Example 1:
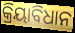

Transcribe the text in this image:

କ୍ରିୟାବିଧାନ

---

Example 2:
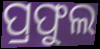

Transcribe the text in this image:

ପ୍ରଫୁଲ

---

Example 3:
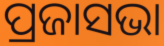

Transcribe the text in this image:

ପ୍ରଜାସଭା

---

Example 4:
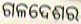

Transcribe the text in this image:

ଗଳଦେଶର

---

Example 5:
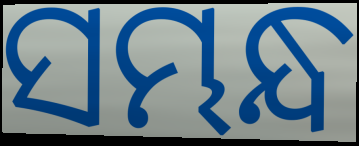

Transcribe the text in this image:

ସମ୍ଭନ୍ଧ